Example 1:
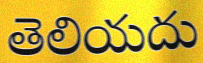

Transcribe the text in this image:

తెలియదు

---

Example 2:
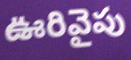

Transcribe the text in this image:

ఊరివైపు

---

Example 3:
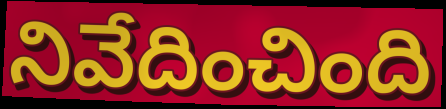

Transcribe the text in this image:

నివేదించింది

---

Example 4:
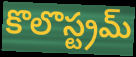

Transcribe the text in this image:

కొలొస్ట్రమ్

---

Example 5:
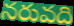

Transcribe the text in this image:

నరువది